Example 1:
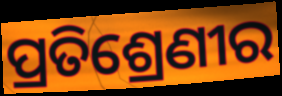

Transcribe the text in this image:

ପ୍ରତିଶ୍ରେଣୀର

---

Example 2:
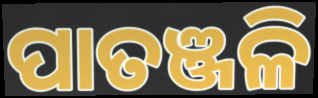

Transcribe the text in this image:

ପାତଞ୍ଜଳି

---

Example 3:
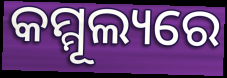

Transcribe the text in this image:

କମ୍ମୂଲ୍ୟରେ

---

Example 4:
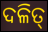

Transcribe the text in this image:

ଦଳିତ୍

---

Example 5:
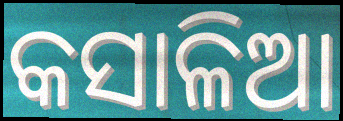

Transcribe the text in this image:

କସାଳିଆ